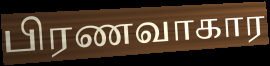
பிரணவாகார